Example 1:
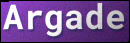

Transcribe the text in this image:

Argade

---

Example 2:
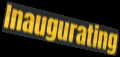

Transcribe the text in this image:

Inaugurating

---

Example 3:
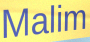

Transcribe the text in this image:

Malim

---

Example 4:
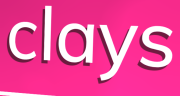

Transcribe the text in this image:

clays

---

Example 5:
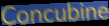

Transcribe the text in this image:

Concubine